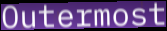
Outermost